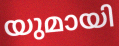
യുമായി